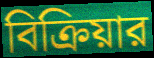
বিক্রিয়ার